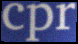
cpr